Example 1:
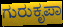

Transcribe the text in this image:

ಗುರುಕೃಪಾ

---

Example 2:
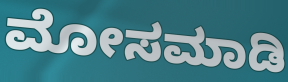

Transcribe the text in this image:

ಮೋಸಮಾಡಿ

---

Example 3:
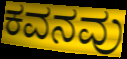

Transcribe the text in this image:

ಕವನವು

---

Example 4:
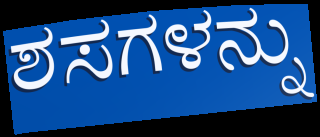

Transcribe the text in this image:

ಶಸಗಳನ್ನು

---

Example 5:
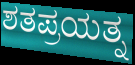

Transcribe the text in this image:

ಶತಪ್ರಯತ್ನ